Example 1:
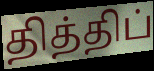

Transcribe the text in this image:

தித்திப்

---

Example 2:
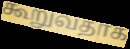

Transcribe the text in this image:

கூறுவதாக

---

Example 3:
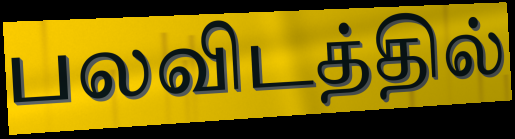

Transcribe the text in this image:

பலவிடத்தில்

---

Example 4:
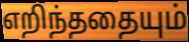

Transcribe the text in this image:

எறிந்ததையும்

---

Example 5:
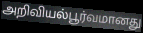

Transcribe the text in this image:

அறிவியல்பூர்வமானது